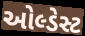
ઓલ્ડેસ્ટ